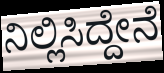
ನಿಲ್ಲಿಸಿದ್ದೇನೆ